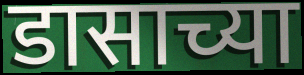
डासाच्या